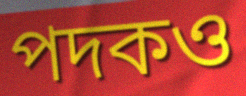
পদকও